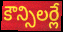
కౌన్సిలర్లే